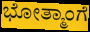
ಭೋತ್ಮಾಂಗೆ